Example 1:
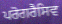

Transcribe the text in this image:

ਪਰੋਗਰੈਸਿਵ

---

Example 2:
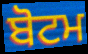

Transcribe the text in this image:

ਬੋਟਮ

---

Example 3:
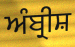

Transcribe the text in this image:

ਅੰਬ੍ਰੀਸ਼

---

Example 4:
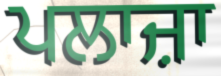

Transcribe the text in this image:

ਪਲਾਜ਼ਾ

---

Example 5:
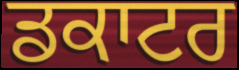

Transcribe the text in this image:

ਡਕਾਟਰ